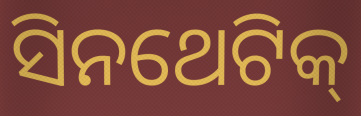
ସିନଥେଟିକ୍